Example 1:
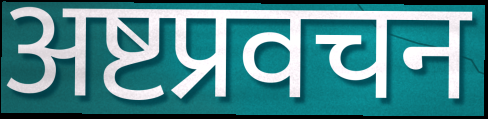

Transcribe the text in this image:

अष्टप्रवचन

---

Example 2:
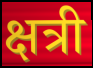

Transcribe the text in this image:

क्षत्री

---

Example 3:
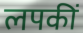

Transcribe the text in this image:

लपकीं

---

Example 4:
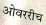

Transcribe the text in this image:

ओवररीच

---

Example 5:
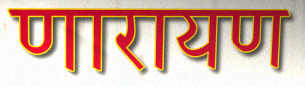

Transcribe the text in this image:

णारायण